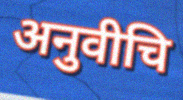
अनुवीचि